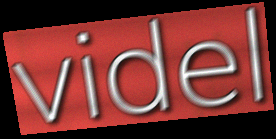
videl